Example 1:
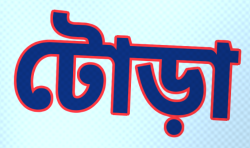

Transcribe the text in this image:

টোড়া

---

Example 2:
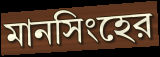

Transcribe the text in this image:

মানসিংহের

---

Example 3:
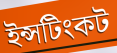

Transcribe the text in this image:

ইন্সটিংকট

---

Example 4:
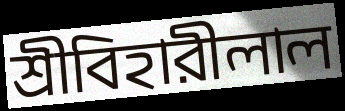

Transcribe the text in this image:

শ্রীবিহারীলাল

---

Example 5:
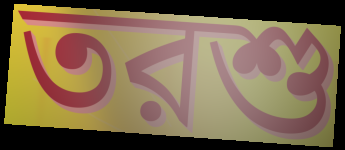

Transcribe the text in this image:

তরশু